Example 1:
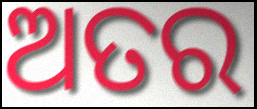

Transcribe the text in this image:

ଅତର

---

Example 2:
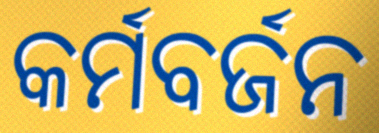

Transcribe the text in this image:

କର୍ମବର୍ଜନ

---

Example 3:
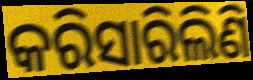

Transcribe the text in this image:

କରିସାରିଲିଣି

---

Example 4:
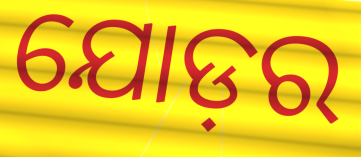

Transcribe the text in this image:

ଯୋଡ଼ର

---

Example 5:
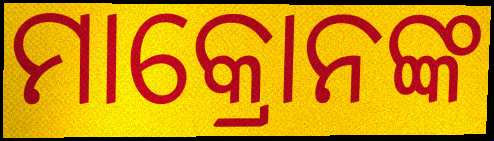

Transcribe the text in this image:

ମାକ୍ରୋନଙ୍କ